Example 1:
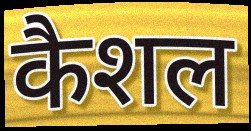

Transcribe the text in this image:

कैशल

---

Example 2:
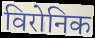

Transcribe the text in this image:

विरोनिक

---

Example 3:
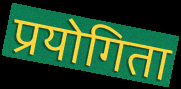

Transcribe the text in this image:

प्रयोगिता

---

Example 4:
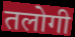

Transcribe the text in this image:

तलोगी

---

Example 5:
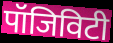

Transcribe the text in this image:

पॉजिविटी